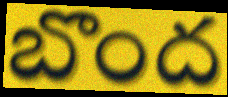
బొంద